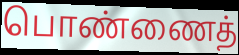
பொண்ணைத்